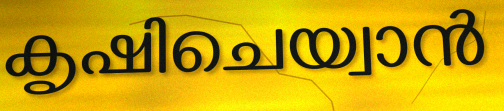
കൃഷിചെയ്വാൻ